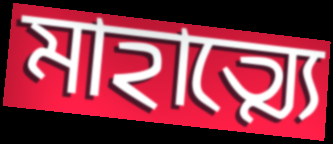
মাহাত্ম্যে